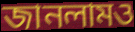
জানলামও